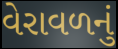
વેરાવળનું